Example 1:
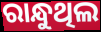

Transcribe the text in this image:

ରାନ୍ଧୁଥିଲ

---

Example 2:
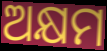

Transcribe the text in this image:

ଅକ୍ଷମ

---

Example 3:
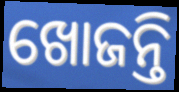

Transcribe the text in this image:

ଖୋଜନ୍ତି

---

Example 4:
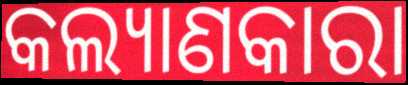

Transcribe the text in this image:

କଲ୍ୟାଣକାରା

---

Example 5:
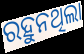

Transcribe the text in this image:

ରହୁନଥିଲା